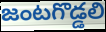
జంటగొడ్డలి